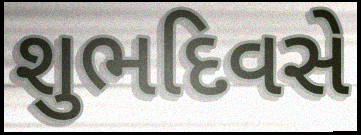
શુભદિવસે